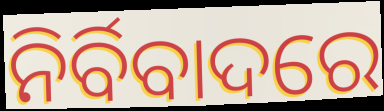
ନିର୍ବିବାଦରେ